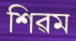
শিৱম